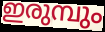
ഇരുമ്പും